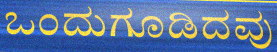
ಒಂದುಗೂಡಿದವು